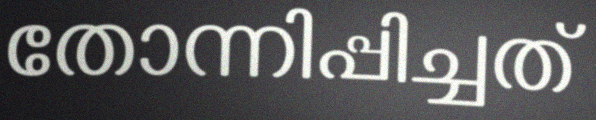
തോന്നിപ്പിച്ചത്